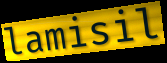
lamisil